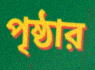
পৃষ্ঠার